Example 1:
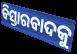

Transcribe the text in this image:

ବିସ୍ତାରବାଦକୁ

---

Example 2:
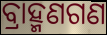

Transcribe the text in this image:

ବ୍ରାହ୍ମଣଗଣ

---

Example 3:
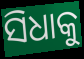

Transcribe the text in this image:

ସିଧାକୁ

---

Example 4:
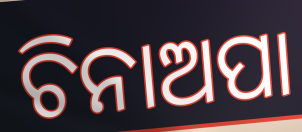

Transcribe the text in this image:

ଚିନାଅପା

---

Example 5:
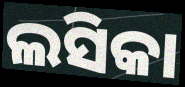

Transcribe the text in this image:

ଲସିକା